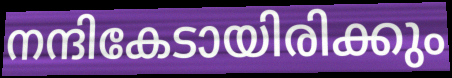
നന്ദികേടായിരിക്കും